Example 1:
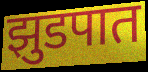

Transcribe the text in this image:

झुडपात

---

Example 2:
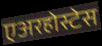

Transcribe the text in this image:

एअरहोस्टेस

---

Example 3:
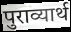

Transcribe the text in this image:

पुराव्यार्थ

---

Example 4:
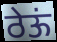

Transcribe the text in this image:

ठेऊं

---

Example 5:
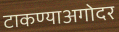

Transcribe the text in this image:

टाकण्याअगोदर